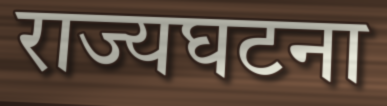
राज्यघटना